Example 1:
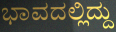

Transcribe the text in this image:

ಭಾವದಲ್ಲಿದ್ದು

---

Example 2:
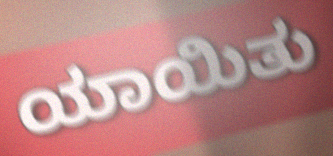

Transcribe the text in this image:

ಯಾಯಿತು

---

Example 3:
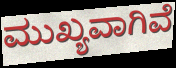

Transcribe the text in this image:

ಮುಖ್ಯವಾಗಿವೆ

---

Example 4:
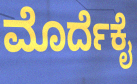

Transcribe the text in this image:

ಮೊರ್ದೆಕೈ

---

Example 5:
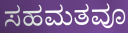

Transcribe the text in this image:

ಸಹಮತವೂ